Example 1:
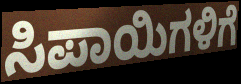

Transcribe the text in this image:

ಸಿಪಾಯಿಗಳಿಗೆ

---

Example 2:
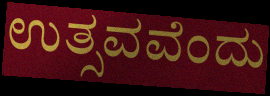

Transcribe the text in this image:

ಉತ್ಸವವೆಂದು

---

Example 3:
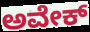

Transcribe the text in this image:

ಅವೇಕ್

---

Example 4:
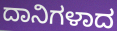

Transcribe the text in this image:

ದಾನಿಗಳಾದ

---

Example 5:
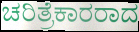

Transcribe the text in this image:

ಚರಿತ್ರೆಕಾರರಾದ